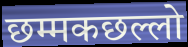
छम्मकछल्लो